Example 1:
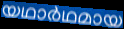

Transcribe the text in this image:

യഥാർഥമായ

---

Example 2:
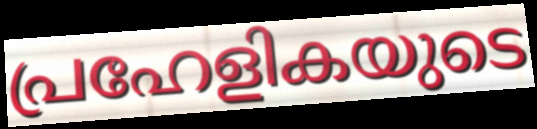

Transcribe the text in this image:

പ്രഹേളികയുടെ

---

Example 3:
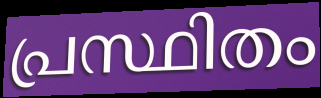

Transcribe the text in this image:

പ്രസ്ഥിതം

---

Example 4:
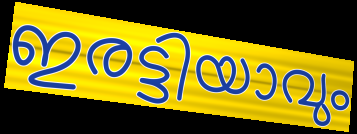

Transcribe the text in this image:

ഇരട്ടിയാവും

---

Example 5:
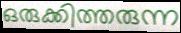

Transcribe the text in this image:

ഒരുക്കിത്തരുന്ന